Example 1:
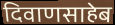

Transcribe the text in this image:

दिवाणसाहेब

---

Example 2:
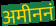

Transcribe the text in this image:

अमीननं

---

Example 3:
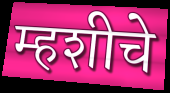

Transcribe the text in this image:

म्हशीचे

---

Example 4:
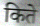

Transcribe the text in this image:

किते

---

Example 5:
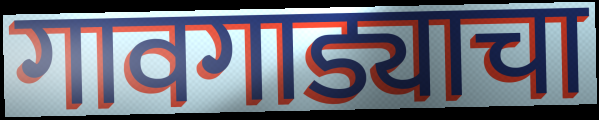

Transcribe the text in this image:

गावगाड्याचा